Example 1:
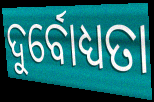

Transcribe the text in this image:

ଦୁର୍ବୋଧ୍ୟତା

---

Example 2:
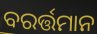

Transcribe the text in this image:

ବରର୍ତ୍ତମାନ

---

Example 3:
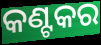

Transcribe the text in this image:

କଣ୍ଟକର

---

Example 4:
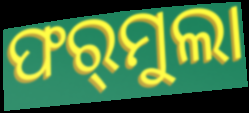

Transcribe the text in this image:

ଫର୍‌ମୁଲା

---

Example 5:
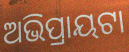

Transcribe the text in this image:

ଅଭିପ୍ରାୟଟା